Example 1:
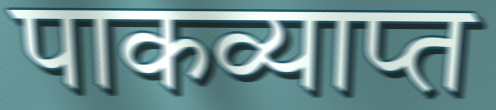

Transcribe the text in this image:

पाकव्याप्त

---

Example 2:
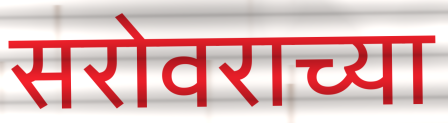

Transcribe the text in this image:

सरोवराच्या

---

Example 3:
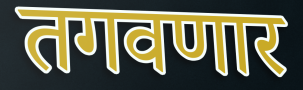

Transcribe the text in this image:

तगवणार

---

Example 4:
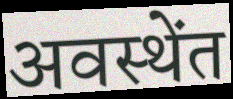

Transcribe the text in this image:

अवस्थेंत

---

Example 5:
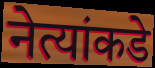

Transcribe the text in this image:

नेत्यांकडे